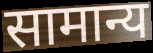
सामान्य